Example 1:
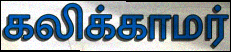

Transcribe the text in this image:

கலிக்காமர்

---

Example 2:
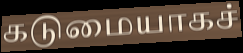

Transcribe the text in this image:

கடுமையாகச்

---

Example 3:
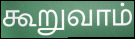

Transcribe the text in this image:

கூறுவாம்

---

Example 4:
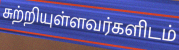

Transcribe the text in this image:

சுற்றியுள்ளவர்களிடம்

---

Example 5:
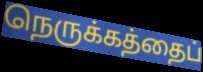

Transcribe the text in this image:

நெருக்கத்தைப்